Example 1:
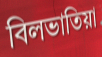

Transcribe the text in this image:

বিলভাতিয়া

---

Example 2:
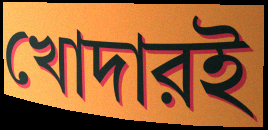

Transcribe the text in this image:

খোদারই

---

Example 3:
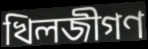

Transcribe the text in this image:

খিলজীগণ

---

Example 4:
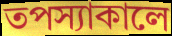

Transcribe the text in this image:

তপস্যাকালে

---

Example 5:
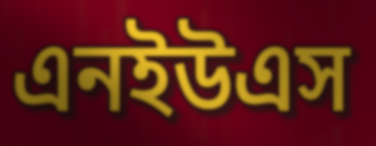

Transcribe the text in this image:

এনইউএস